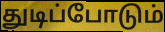
துடிப்போடும்